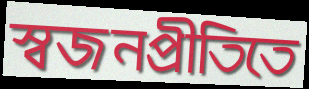
স্বজনপ্রীতিতে